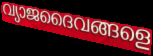
വ്യാജദൈവങ്ങളെ